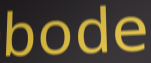
bode